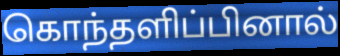
கொந்தளிப்பினால்